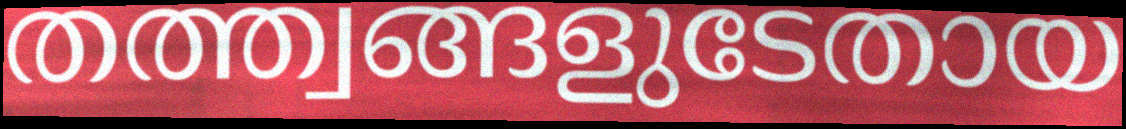
തത്ത്വങ്ങളുടേതായ